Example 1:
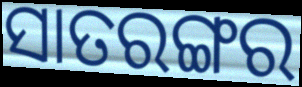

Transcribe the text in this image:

ସାତରଙ୍ଗର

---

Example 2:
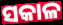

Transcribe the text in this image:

ସକାଳ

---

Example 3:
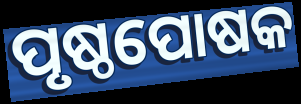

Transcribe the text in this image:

ପୃଷ୍ଠପୋଷକ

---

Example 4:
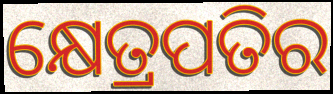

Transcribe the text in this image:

କ୍ଷେତ୍ରପତିର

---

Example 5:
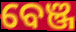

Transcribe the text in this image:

ବେଞ୍ଜ